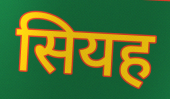
सियह